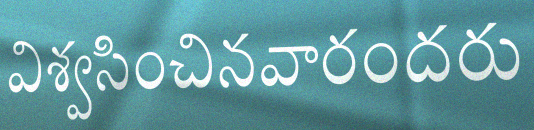
విశ్వసించినవారందరు